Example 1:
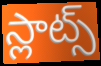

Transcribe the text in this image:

స్లాట్స్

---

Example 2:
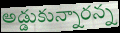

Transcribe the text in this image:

అడ్డుకున్నారన్న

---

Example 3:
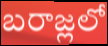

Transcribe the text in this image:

బరాజ్లలో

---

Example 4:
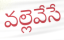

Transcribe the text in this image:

వల్లెవేసే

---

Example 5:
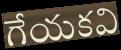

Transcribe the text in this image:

గేయకవి